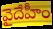
వైదేహీం